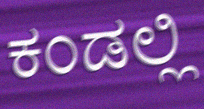
ಕಂಡಲ್ಲಿ